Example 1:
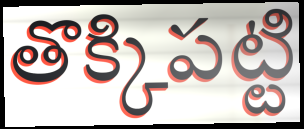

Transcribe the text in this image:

తొక్కిపట్టి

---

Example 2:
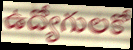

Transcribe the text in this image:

ఉద్యోగులకో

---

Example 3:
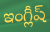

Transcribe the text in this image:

ఇంగ్లీష్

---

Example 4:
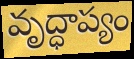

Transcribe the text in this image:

వృద్ధాప్యం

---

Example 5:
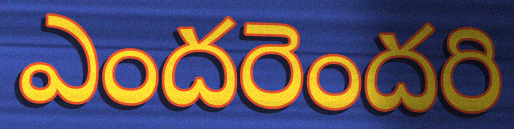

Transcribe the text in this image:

ఎందరెందరి